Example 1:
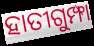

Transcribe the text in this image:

ହାତୀଗୁମ୍ଫା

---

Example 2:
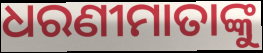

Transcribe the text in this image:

ଧରଣୀମାତାଙ୍କୁ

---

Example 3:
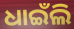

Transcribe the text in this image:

ଧାଇଁଲି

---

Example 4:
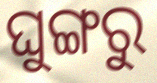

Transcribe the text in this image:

ଘୁଙ୍ଗରୁ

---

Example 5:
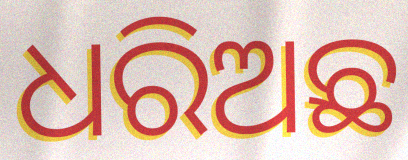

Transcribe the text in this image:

ଧରିଅଛ